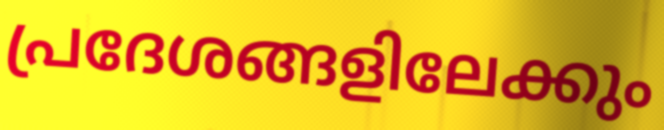
പ്രദേശങ്ങളിലേക്കും